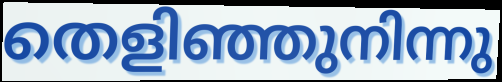
തെളിഞ്ഞുനിന്നു